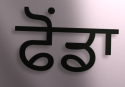
ਫੋਂਡਾ